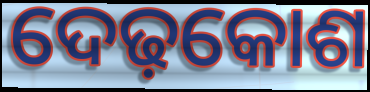
ଦେଢ଼କୋଶ